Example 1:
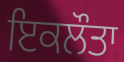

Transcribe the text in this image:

ਇਕਲੌਤਾ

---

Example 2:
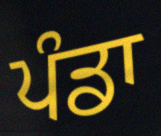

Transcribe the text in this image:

ਪੰਡਾ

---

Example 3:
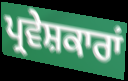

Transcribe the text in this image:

ਪ੍ਰਵੇਸ਼ਕਾਰਾਂ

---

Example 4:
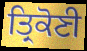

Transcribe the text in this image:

ਤ੍ਰਿਕੋਣੀ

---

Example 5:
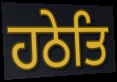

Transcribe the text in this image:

ਹਠੇਤਿ